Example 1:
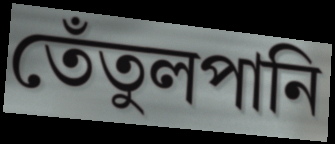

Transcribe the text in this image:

তেঁতুলপানি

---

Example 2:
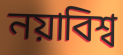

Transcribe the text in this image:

নয়াবিশ্ব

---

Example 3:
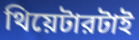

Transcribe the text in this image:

থিয়েটারটাই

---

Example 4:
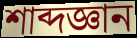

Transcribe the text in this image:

শাব্দজ্ঞান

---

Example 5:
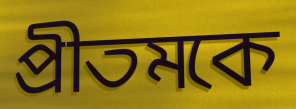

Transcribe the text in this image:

প্রীতমকে